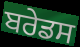
ਬਰੇਡਸ